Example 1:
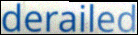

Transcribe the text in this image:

derailed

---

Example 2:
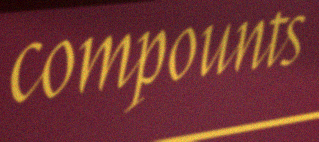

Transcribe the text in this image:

compounts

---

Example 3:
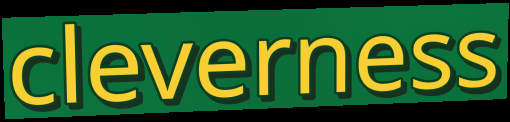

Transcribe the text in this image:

cleverness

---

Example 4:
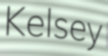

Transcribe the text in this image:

Kelsey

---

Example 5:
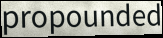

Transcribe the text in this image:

propounded